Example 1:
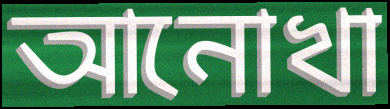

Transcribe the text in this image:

আনোখা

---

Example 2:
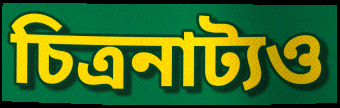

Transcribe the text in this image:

চিত্রনাট্যও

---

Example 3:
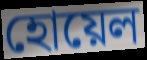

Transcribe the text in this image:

হোয়েল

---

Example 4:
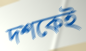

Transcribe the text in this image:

দশকেই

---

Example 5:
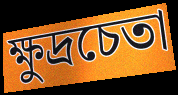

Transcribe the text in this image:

ক্ষুদ্রচেতা